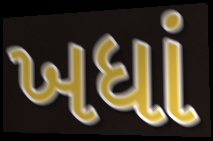
ખધાં